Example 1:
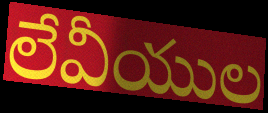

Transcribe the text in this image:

లేవీయుల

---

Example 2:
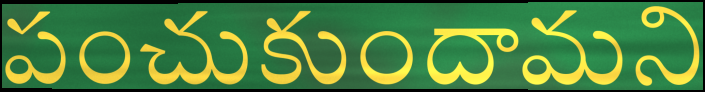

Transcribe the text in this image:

పంచుకుందామని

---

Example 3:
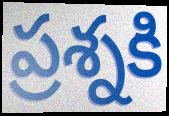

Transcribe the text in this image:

ప్రశ్నకి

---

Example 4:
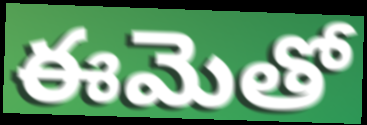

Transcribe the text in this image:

ఈమెతో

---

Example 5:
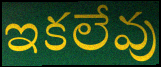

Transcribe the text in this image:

ఇకలేవు